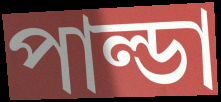
পাল্ডা